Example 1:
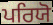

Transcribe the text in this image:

ਪਰਿਯੋ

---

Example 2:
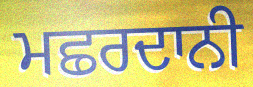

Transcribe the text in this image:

ਮਛਰਦਾਨੀ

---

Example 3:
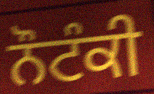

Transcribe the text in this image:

ਨੌਟੰਕੀ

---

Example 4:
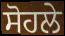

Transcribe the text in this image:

ਸੋਹਲੇ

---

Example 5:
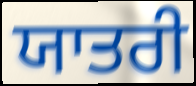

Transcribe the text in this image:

ਯਾਤਰੀ